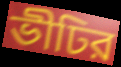
ভীঢির